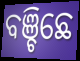
ବଞ୍ଚିଛେ